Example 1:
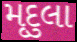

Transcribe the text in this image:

મૃદુલા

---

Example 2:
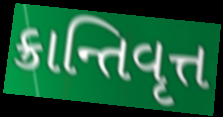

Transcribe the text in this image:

ક્રાન્તિવૃત્ત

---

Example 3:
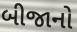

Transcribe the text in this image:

બીજાનો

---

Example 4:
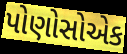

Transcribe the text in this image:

પોણોસોએક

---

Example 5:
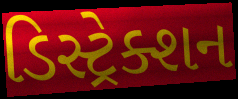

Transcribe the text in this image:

ડિસ્ટ્રેક્શન